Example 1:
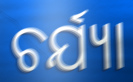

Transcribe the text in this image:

ଚର୍ଯ୍ଯା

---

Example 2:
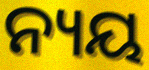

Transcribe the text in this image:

ନ୍ୟୟ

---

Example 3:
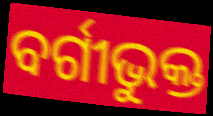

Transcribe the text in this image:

ବର୍ଗୀଭୁକ୍ତ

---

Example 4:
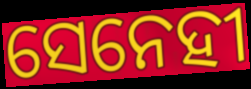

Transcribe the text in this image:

ସେନେହୀ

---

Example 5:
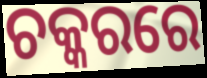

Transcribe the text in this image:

ଚକ୍କରରେ